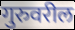
गुरुवरील